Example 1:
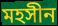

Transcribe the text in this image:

মহসীন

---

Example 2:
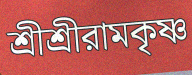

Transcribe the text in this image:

শ্রীশ্রীরামকৃষ্ণ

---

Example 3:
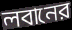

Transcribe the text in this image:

লবানের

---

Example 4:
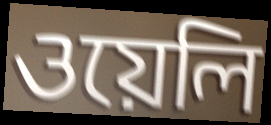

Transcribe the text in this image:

ওয়েলি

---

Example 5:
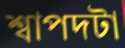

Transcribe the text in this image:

শ্বাপদটা